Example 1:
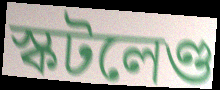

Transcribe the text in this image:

স্কটলেণ্ড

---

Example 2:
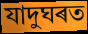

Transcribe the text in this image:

যাদুঘৰত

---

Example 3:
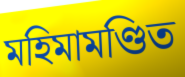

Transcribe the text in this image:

মহিমামণ্ডিত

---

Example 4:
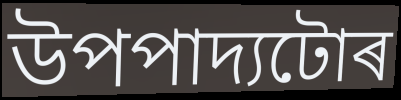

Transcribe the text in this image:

উপপাদ্যটোৰ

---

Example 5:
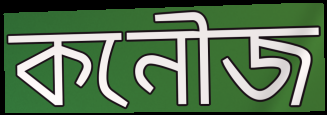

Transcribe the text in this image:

কনৌজ